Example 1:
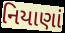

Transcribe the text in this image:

નિયાણાં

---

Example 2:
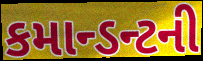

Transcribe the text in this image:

કમાન્ડન્ટની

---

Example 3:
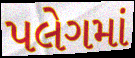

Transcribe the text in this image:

પલેગમાં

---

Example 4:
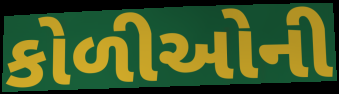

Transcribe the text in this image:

કોળીઓની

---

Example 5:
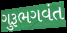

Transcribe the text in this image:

ગુરૂભગવંત